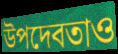
উপদেবতাও